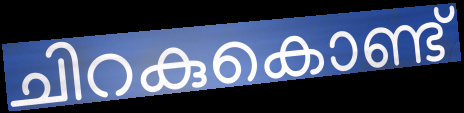
ചിറകുകൊണ്ട്